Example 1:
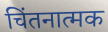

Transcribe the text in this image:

चिंतनात्मक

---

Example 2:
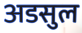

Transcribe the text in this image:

अडसुल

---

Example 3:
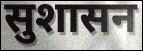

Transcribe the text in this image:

सुशासन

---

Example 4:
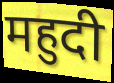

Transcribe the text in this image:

महुदी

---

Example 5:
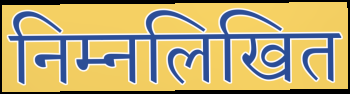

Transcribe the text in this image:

निम्नलिखित